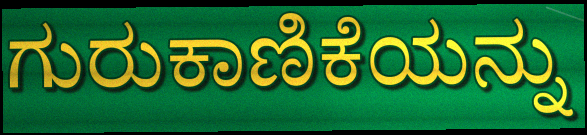
ಗುರುಕಾಣಿಕೆಯನ್ನು